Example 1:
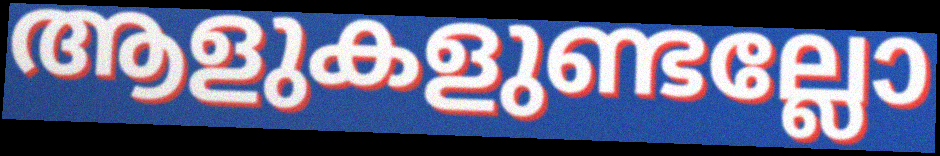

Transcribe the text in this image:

ആളുകളുണ്ടല്ലോ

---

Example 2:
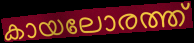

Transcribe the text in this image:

കായലോരത്ത്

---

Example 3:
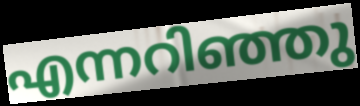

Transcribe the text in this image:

എന്നറിഞ്ഞു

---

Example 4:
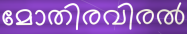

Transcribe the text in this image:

മോതിരവിരൽ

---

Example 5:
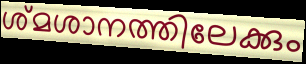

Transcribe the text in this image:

ശ്മശാനത്തിലേക്കും